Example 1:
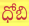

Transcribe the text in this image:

ధోబి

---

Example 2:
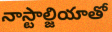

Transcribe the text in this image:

నాస్టాల్జియాతో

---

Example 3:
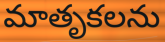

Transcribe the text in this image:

మాతృకలను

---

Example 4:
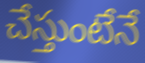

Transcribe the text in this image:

చేస్తుంటేనే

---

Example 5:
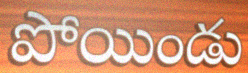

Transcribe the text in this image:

పోయిండు